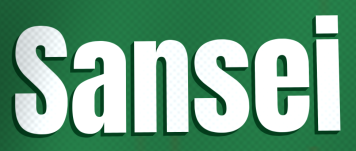
Sansei